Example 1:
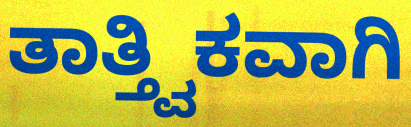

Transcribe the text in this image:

ತಾತ್ತ್ವಿಕವಾಗಿ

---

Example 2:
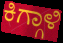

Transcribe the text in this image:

ಕಿಗ್ಗಾಳಿ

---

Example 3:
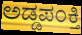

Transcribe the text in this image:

ಅಡ್ಡಪಂಕ್ತಿ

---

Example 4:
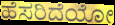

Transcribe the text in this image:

ಹೆಸರಿದೆಯೋ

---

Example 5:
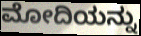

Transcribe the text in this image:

ಮೋದಿಯನ್ನು